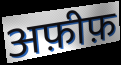
अफ़ीफ़